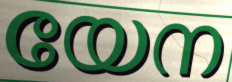
യേന